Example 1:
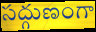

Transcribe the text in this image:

సద్గుణంగా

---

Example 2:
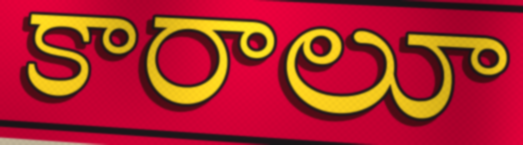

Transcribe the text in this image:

కారాలూ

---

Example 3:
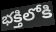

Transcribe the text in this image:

భక్తిలోకి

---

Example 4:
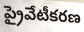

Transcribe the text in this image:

ప్రైవేటీకరణ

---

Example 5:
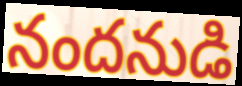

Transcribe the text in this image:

నందనుడి